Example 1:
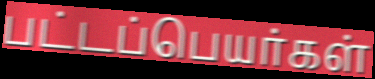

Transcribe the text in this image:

பட்டப்பெயர்கள்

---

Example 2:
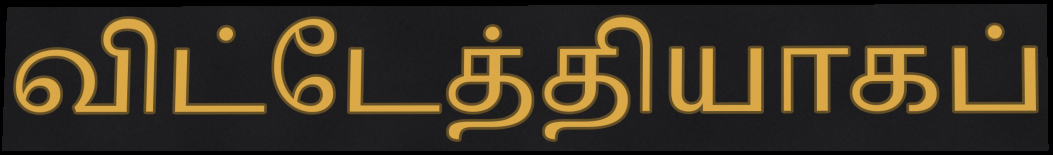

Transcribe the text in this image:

விட்டேத்தியாகப்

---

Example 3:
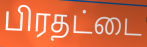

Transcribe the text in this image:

பிரதட்டை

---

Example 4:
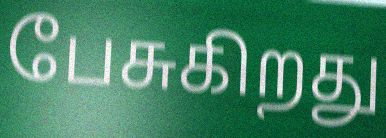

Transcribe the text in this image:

பேசுகிறது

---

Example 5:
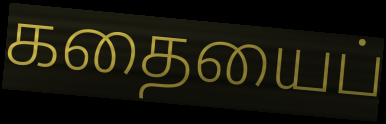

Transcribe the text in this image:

கதையைப்